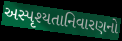
અસ્પૃશ્યતાનિવારણનો